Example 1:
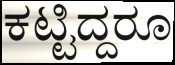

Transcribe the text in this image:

ಕಟ್ಟಿದ್ದರೂ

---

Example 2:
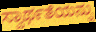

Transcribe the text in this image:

ಸ್ವಾರ್ಥತೆಯನ್ನು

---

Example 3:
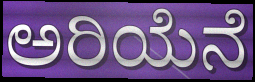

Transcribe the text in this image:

ಅರಿಯೆನೆ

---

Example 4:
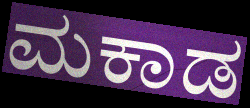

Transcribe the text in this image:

ಮಕಾಡ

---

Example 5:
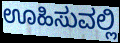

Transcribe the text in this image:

ಊಹಿಸುವಲ್ಲಿ